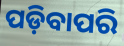
ପଡ଼ିବାପରି